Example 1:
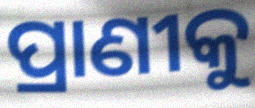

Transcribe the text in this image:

ପ୍ରାଣୀକୁ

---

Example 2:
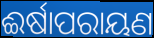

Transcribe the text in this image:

ଈର୍ଷାପରାୟଣ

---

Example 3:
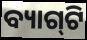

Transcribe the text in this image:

ବ୍ୟାଗ୍‌ଟି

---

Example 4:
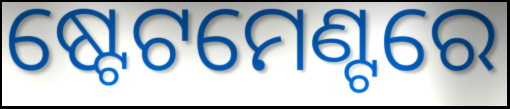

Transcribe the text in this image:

ଷ୍ଟେଟମେଣ୍ଟରେ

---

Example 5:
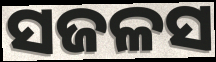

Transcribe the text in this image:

ସଜଳସ